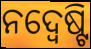
ନଦ୍ୱେଷ୍ଟି